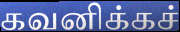
கவனிக்கச்